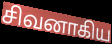
சிவனாகிய